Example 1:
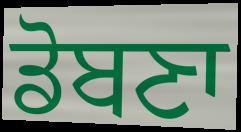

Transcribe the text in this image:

ਡੋਬਣਾ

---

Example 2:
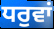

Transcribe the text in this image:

ਧਰੁਵਾਂ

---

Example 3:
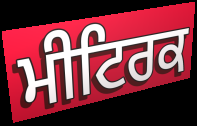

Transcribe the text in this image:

ਮੀਟਿਰਕ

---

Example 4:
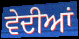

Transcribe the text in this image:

ਵੇਦੀਆਂ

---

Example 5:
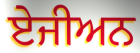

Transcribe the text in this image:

ਏਜੀਅਨ